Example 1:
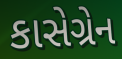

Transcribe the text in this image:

કાસેગ્રેન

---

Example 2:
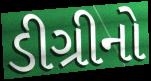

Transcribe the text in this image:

ડીગ્રીનો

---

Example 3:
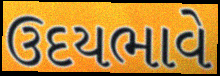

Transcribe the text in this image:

ઉદયભાવે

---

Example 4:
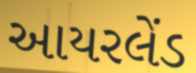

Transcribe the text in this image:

આયરલેંડ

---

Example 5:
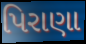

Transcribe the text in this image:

પિરાણા